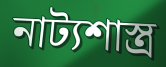
নাট্যশাস্ত্ৰ